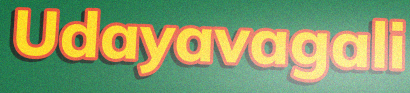
Udayavagali